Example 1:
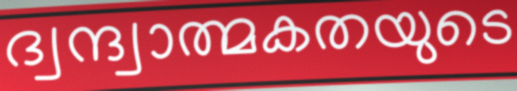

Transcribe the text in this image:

ദ്വന്ദ്വാത്മകതയുടെ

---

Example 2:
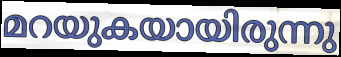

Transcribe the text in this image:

മറയുകയായിരുന്നു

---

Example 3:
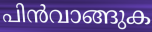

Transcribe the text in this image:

പിൻവാങ്ങുക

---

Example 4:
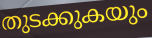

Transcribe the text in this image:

തുടക്കുകയും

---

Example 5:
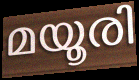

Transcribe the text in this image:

മയൂരി